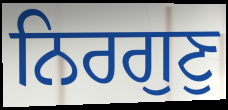
ਨਿਰਗੁਣੁ